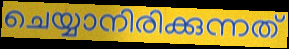
ചെയ്യാനിരിക്കുന്നത്